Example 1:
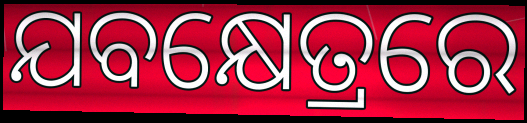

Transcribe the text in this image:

ଯବକ୍ଷେତ୍ରରେ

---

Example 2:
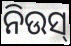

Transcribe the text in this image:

ନିଉସ୍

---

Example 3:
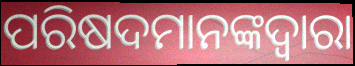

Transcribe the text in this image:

ପରିଷଦମାନଙ୍କଦ୍ୱାରା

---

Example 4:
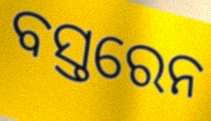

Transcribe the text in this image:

ବସ୍ତରେନ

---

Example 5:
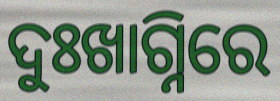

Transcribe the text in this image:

ଦୁଃଖାଗ୍ନିରେ